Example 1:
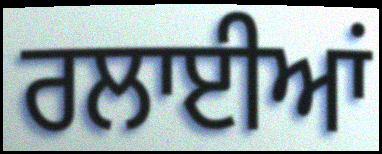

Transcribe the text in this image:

ਰਲਾਈਆਂ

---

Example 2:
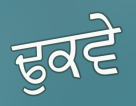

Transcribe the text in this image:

ਢੁਕਵੇ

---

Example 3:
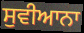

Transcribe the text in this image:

ਸੁਵੀਆਨਾ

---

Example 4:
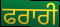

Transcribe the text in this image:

ਫਰਾਰੀ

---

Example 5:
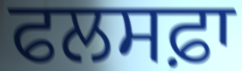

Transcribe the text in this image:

ਫਲਸਫ਼ਾ